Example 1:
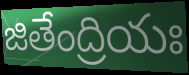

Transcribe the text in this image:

జితేంద్రియః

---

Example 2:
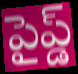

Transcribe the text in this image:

పైప్డ్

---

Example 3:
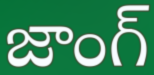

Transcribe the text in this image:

జాంగ్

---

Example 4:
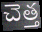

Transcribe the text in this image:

చెత్త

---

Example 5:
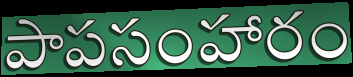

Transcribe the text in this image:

పాపసంహారం